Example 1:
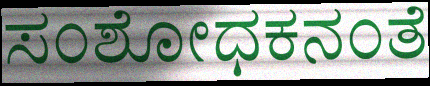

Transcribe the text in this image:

ಸಂಶೋಧಕನಂತೆ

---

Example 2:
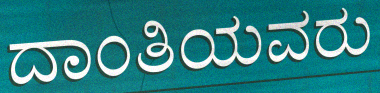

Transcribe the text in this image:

ದಾಂತಿಯವರು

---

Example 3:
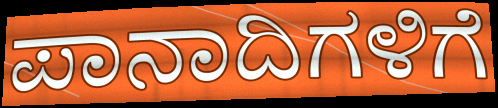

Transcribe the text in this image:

ಪಾನಾದಿಗಳಿಗೆ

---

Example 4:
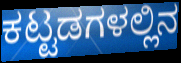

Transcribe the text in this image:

ಕಟ್ಟಡಗಳಲ್ಲಿನ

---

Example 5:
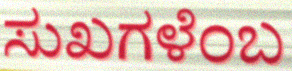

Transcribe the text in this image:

ಸುಖಗಳೆಂಬ